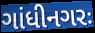
ગાંધીનગરઃ